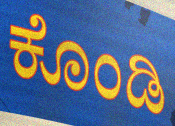
ಕೊಂಡಿ